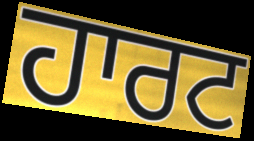
ਹਾਰਟ